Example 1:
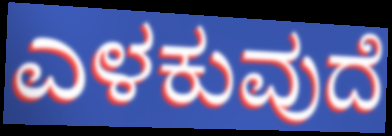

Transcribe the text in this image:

ಎಳಕುವುದೆ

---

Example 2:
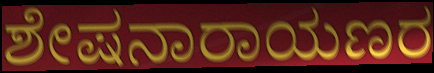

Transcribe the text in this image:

ಶೇಷನಾರಾಯಣರ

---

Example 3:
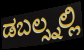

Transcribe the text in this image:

ಡಬಲ್ಸ್ನಲ್ಲಿ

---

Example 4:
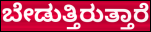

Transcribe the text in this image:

ಬೇಡುತ್ತಿರುತ್ತಾರೆ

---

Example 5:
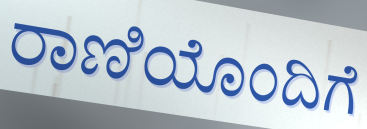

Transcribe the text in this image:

ರಾಣಿಯೊಂದಿಗೆ